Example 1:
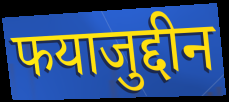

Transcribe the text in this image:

फयाजुद्दीन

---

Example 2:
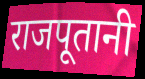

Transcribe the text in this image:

राजपूतानी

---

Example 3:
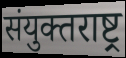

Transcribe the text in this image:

संयुक्तराष्ट्र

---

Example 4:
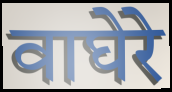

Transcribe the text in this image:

वाघेरे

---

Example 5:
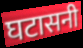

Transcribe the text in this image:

घटासनी